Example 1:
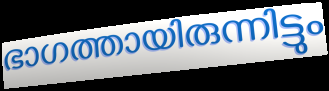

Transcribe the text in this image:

ഭാഗത്തായിരുന്നിട്ടും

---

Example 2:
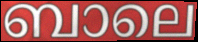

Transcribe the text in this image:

ബാലെ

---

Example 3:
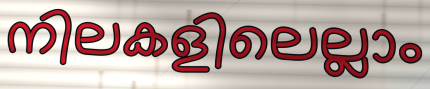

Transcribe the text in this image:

നിലകളിലെല്ലാം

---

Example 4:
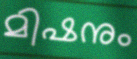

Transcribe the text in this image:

മിഷനും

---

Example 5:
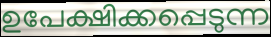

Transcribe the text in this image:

ഉപേക്ഷിക്കപ്പെടുന്ന